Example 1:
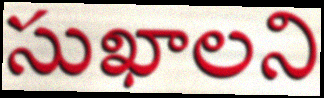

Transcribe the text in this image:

సుఖాలని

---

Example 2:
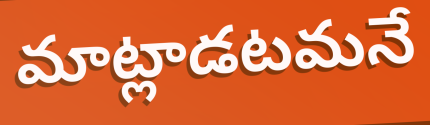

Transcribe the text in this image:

మాట్లాడటమనే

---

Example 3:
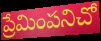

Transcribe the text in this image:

ప్రేమింపనిచో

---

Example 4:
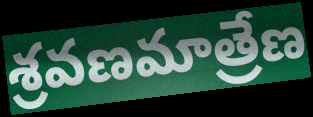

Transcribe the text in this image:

శ్రవణమాత్రేణ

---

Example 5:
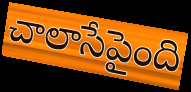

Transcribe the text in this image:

చాలాసేపైంది